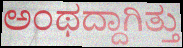
ಅಂಥದ್ದಾಗಿತ್ತು